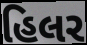
હિલર